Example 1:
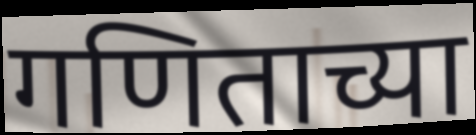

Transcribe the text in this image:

गणिताच्या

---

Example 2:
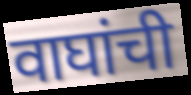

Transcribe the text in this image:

वाघांची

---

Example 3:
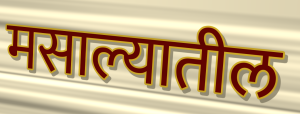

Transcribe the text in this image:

मसाल्यातील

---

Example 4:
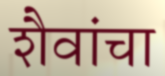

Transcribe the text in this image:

शैवांचा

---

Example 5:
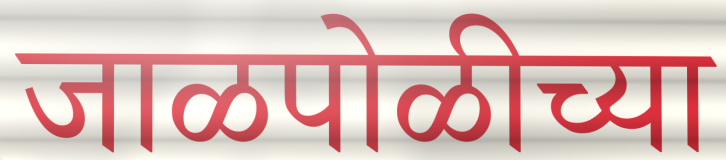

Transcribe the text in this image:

जाळपोळीच्या